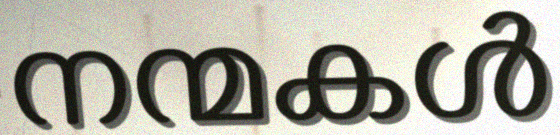
നന്മകൾ